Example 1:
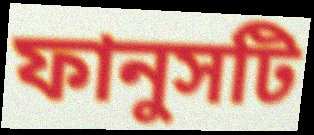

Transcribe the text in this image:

ফানুসটি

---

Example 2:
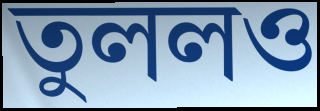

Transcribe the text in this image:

তুললও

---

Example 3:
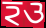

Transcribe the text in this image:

হও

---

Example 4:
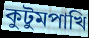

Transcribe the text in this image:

কুটুমপাখি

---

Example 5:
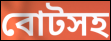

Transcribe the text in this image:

বোটসহ